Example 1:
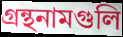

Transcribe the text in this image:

গ্রন্থনামগুলি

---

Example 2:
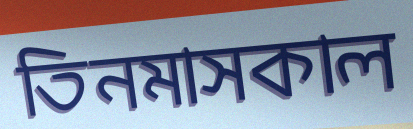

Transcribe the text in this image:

তিনমাসকাল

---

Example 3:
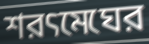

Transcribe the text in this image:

শরৎমেঘের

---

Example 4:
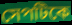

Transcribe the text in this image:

সেপটিকে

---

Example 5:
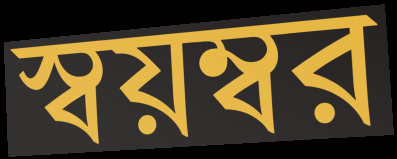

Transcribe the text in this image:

স্বয়ম্বর